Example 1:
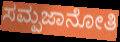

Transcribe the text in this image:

ಸಮ್ಪಜಾನೋತಿ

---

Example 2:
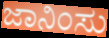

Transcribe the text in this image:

ಜಾನಿಂಸು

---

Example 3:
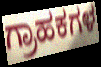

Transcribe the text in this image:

ಗ್ರಾಹಕಗಳ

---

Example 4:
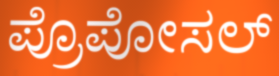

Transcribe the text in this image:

ಪ್ರೊಪೋಸಲ್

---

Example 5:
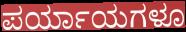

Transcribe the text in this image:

ಪರ್ಯಾಯಗಳೂ